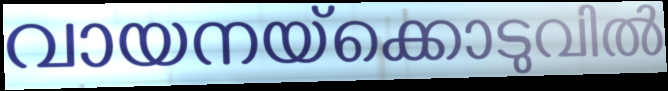
വായനയ്‌ക്കൊടുവിൽ